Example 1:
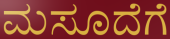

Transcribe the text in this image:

ಮಸೂದೆಗೆ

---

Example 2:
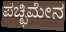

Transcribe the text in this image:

ಪಚ್ಛಿಮೇನ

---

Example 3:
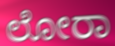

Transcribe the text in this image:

ಲೋರಾ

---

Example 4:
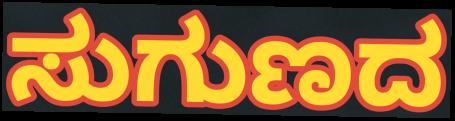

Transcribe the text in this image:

ಸುಗುಣದ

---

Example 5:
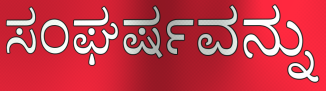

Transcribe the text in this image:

ಸಂಘರ್ಷವನ್ನು